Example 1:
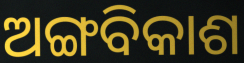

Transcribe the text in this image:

ଅଙ୍ଗବିକାଶ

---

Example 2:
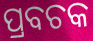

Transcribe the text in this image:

ପ୍ରବଚକ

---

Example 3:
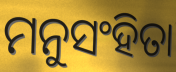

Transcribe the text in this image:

ମନୁସଂହିତା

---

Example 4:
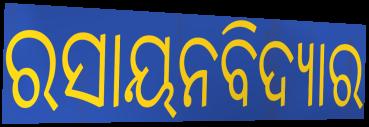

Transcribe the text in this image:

ରସାୟନବିଦ୍ୟାର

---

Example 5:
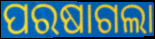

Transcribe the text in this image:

ପରଷାଗଲା